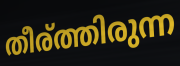
തീര്ത്തിരുന്ന